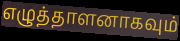
எழுத்தாளனாகவும்